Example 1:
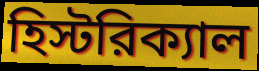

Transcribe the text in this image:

হিস্টরিক্যাল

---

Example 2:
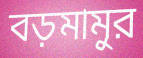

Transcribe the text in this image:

বড়মামুর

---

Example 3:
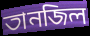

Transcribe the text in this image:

তানজিল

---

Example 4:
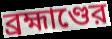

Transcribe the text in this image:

ব্রহ্মাণ্ডের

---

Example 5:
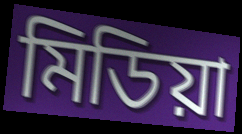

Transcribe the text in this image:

মিডিয়া